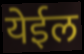
येईल